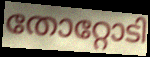
തോറ്റോടി